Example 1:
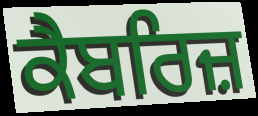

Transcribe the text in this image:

ਕੈਬਰਿਜ਼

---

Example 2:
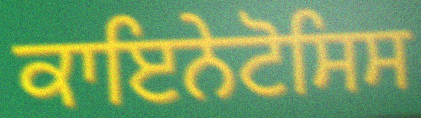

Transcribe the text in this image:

ਕਾਇਨੇਟੋਸਿਸ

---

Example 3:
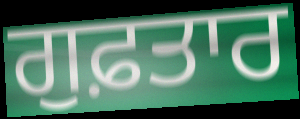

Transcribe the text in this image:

ਗੁਫ਼ਤਾਰ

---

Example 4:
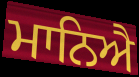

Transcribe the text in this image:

ਮਾਨਿਐ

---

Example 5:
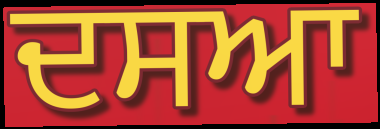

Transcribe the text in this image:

ਦਸਆ